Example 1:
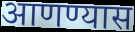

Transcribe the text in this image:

आणण्यास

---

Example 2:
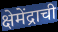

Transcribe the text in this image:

क्षेमेंद्राची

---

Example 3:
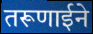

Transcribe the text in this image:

तरूणाईने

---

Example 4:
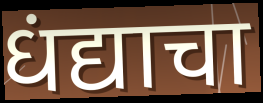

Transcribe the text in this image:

धंद्याचा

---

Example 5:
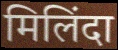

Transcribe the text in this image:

मिलिंदा